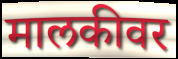
मालकीवर